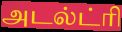
அடல்ட்ரி